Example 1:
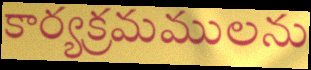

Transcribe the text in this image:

కార్యక్రమములను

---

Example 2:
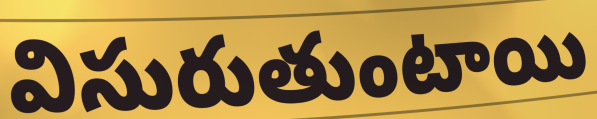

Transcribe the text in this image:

విసురుతుంటాయి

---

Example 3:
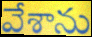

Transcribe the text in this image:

వేశాను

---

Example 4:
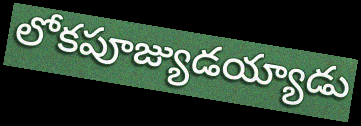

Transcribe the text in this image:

లోకపూజ్యుడయ్యాడు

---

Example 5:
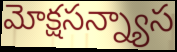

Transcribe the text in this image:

మోక్షసన్న్యాస